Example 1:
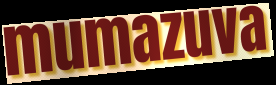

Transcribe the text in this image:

mumazuva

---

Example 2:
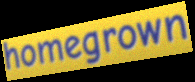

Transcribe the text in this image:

homegrown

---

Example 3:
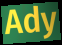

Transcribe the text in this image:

Ady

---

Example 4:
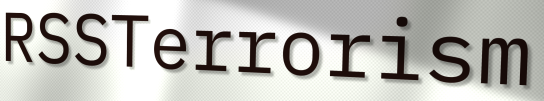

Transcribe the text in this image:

RSSTerrorism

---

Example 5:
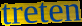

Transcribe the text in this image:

treten